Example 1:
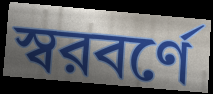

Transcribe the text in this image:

স্বরবর্ণে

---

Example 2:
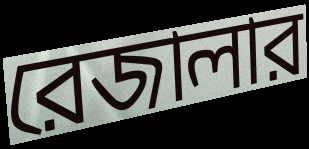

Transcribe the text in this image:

রেজালার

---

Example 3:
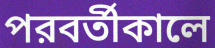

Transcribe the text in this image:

পরবর্তীকালে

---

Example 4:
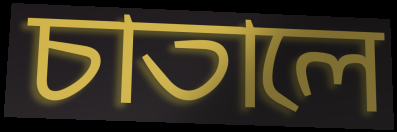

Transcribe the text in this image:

চাতালে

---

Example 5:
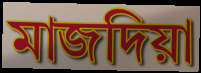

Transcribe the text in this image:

মাজদিয়া